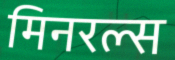
मिनरल्स